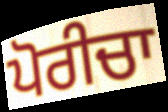
ਪੋਰੀਚਾ